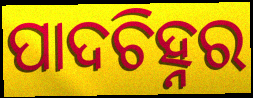
ପାଦଚିହ୍ନର